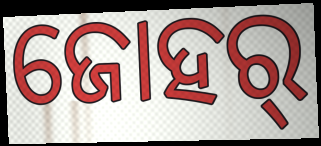
ଜୋହର୍